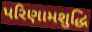
પરિણામશુદ્ધિ